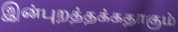
இன்புறத்தக்கதாகும்